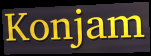
Konjam